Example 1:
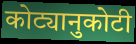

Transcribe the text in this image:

कोट्यानुकोटी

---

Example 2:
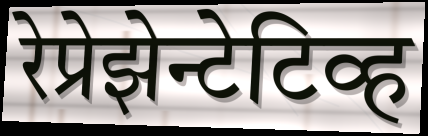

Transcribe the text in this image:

रेप्रेझेन्टेटिव्ह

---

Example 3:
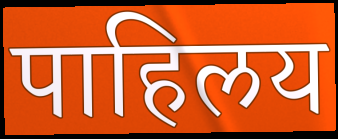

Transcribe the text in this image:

पाहिलय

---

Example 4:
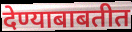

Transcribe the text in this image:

देण्याबाबतीत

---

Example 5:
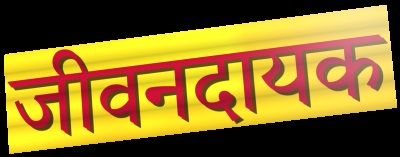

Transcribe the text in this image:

जीवनदायक